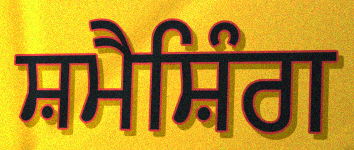
ਸ਼ਮੈਸ਼ਿੰਗ